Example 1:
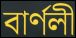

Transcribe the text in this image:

বাৰ্ণলী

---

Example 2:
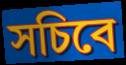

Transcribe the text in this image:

সচিবে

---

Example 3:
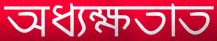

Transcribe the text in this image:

অধ্যক্ষতাত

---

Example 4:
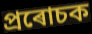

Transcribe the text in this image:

প্ৰৰোচক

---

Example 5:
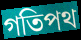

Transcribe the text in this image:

গতিপথ